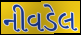
નીવડેલ